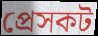
প্রেসকট